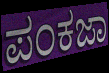
ಪಂಕಜಾ